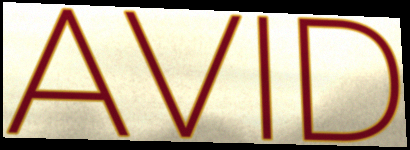
AVID